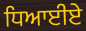
ਧਿਆਈਏ